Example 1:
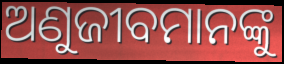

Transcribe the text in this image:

ଅଣୁଜୀବମାନଙ୍କୁ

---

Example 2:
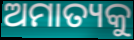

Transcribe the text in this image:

ଅମାତ୍ୟକୁ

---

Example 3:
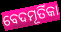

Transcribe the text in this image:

ବେଦମୂର୍ତିକା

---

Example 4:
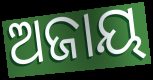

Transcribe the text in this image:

ଅଜାୟ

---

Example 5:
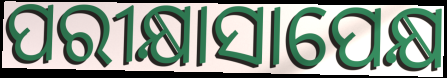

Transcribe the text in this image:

ପରୀକ୍ଷାସାପେକ୍ଷ